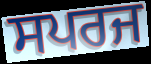
ਸਪਰਜ